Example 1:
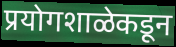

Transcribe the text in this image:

प्रयोगशाळेकडून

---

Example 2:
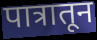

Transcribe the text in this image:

पात्रातून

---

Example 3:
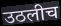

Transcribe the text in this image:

उठलीच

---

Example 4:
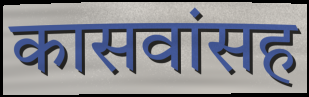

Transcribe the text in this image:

कासवांसह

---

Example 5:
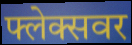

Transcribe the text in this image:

फ्लेक्सवर